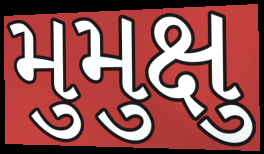
મુમુક્ષુ